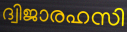
ദ്വിജാരഹസി